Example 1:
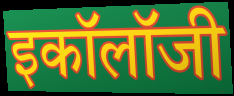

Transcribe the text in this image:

इकॉलॉजी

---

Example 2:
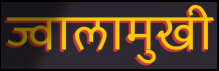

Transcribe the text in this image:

ज्वालामुखी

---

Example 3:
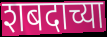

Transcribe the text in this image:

शबदाच्या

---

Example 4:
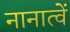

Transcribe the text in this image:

नानात्वें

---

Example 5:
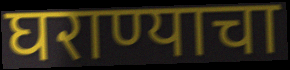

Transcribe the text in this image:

घराण्याचा